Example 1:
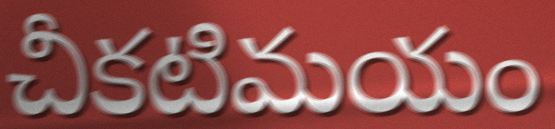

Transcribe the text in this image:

చీకటిమయం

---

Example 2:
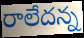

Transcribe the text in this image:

రాలేదన్న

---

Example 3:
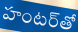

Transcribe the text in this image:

హంటర్‌తో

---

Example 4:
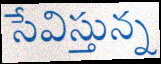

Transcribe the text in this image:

సేవిస్తున్న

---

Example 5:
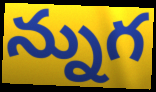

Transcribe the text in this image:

న్నుగ